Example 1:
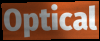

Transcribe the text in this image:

Optical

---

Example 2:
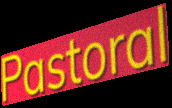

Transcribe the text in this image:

Pastoral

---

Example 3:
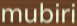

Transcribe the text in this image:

mubiri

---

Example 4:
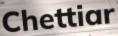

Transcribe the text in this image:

Chettiar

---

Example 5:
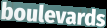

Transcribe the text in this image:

boulevards